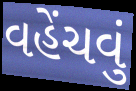
વહેંચવું